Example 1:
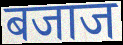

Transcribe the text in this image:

बजाज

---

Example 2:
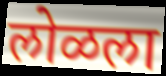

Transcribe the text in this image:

लोळला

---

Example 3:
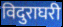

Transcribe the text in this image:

विदुराघरी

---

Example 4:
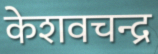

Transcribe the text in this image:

केशवचन्द्र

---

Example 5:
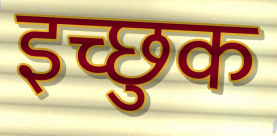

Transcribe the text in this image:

इच्छुक